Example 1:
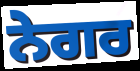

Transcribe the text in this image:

ਨੇਗਰ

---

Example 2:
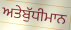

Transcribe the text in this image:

ਅਤੇਬੁੱਧੀਮਾਨ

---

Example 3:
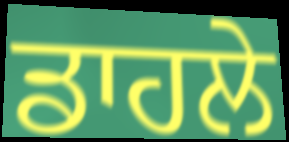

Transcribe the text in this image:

ਡਾਹਲੇ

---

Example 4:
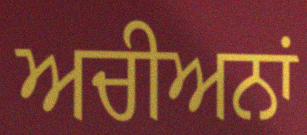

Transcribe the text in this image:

ਅਚੀਅਨਾਂ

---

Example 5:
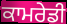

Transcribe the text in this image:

ਕਾਮਰੇਡੀ